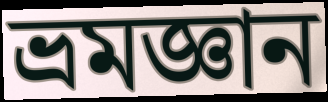
ভ্রমজ্ঞান